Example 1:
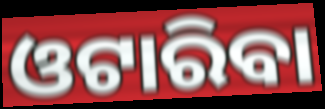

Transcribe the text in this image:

ଓଟାରିବା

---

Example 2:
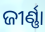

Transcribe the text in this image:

ଜୀର୍ଣ୍ଣା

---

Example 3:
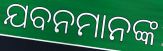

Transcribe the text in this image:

ଯବନମାନଙ୍କ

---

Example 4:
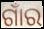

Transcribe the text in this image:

ଗାଁର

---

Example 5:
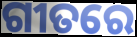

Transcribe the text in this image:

ଗୀତରେ